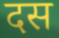
दस